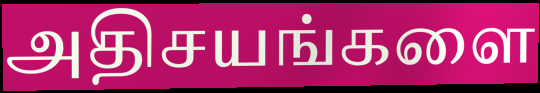
அதிசயங்களை